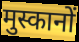
मुस्कानों